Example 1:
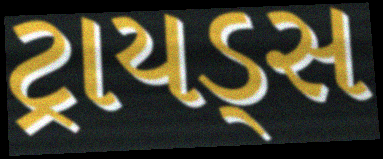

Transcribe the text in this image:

ટ્રાયડ્સ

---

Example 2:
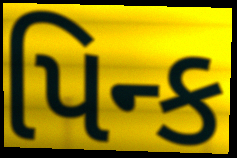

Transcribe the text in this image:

પિન્ક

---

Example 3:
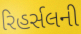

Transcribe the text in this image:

રિહર્સલની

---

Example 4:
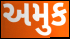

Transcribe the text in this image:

અમુક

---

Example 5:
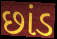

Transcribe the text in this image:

છાંડ